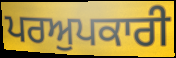
ਪਰਅੁਪਕਾਰੀ